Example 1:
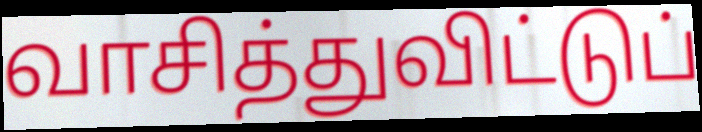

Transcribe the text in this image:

வாசித்துவிட்டுப்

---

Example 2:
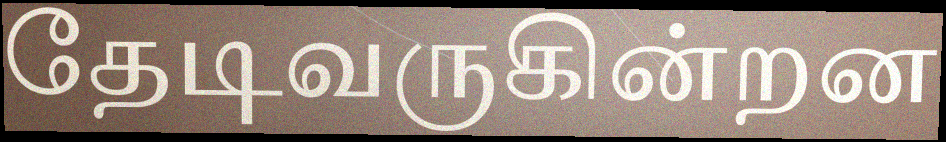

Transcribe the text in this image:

தேடிவருகின்றன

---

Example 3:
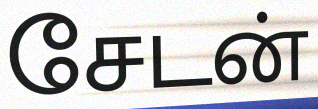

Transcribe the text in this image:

சேடன்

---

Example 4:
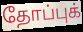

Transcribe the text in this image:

தோப்புக்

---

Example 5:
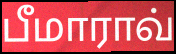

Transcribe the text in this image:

பீமாராவ்